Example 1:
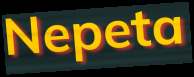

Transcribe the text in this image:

Nepeta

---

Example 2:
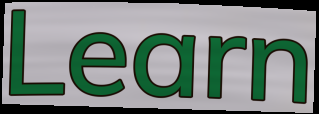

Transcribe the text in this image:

Learn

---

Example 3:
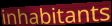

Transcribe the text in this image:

inhabitants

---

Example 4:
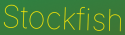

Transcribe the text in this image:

Stockfish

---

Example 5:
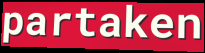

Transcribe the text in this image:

partaken